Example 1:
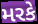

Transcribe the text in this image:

મરકે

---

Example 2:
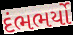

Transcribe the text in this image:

દંભભર્યો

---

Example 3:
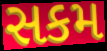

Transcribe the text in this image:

સકમ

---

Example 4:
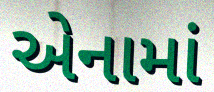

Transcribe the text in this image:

એનામાં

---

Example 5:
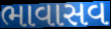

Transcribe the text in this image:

ભાવાસવ